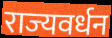
राज्‍यवर्धन